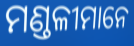
ମଣ୍ଡଳୀମାନେ